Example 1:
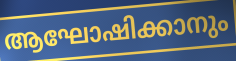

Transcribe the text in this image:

ആഘോഷിക്കാനും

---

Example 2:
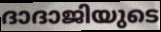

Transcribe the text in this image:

ദാദാജിയുടെ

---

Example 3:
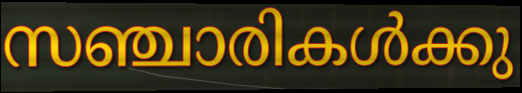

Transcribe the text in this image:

സഞ്ചാരികൾക്കു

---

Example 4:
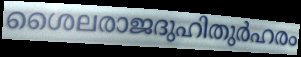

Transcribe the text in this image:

ശൈലരാജദുഹിതുർഹരം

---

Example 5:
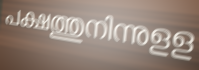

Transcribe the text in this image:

പക്ഷത്തുനിന്നുളള